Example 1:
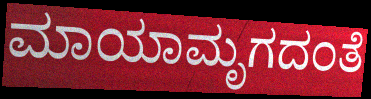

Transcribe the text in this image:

ಮಾಯಾಮೃಗದಂತೆ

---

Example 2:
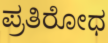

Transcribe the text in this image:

ಪ್ರತಿರೋಧ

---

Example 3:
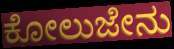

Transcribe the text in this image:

ಕೋಲುಜೇನು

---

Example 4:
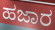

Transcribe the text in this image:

ಹಜಾರ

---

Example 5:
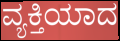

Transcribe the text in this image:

ವ್ಯಕ್ತಿಯಾದ